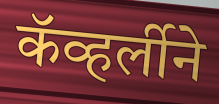
कॅव्हर्लीने